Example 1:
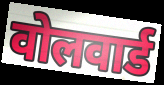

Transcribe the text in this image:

वोलवार्ड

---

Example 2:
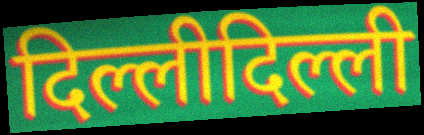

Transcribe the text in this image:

दिल्लीदिल्ली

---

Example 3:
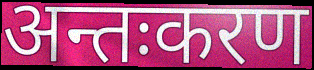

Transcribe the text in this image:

अन्तःकरण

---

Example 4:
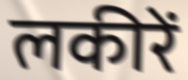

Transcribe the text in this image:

लकीरें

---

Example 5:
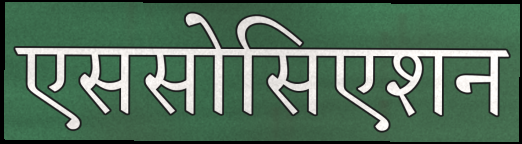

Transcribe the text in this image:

एससोसिएशन